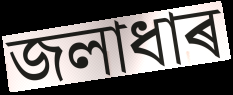
জলাধাৰ